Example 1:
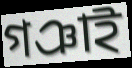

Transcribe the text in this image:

গঞাই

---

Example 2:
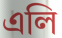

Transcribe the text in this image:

এলি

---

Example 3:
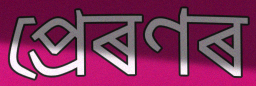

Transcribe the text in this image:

প্ৰেৰণৰ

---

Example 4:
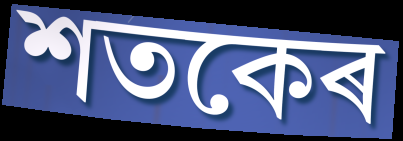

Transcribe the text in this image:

শতকেৰ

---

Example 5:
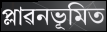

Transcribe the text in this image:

প্লাৱনভূমিত